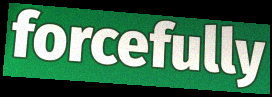
forcefully